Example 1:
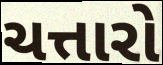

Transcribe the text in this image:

ચત્તારો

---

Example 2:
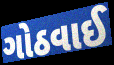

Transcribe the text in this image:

ગોઠવાઈ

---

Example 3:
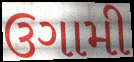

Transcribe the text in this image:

ઉગામી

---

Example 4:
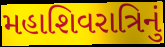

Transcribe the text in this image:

મહાશિવરાત્રિનું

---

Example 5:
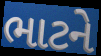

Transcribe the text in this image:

ભાટને